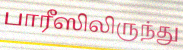
பாரீஸிலிருந்து